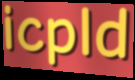
icpld